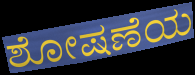
ಶೋಷಣೆಯ